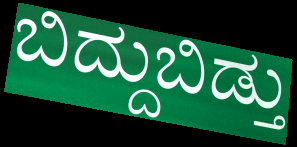
ಬಿದ್ದುಬಿಡ್ತು